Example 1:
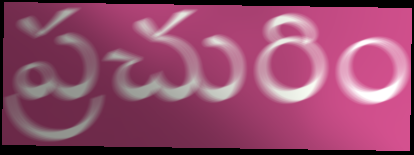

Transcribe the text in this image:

ప్రచురిం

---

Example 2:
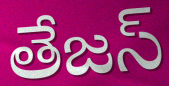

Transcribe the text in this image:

తేజస్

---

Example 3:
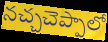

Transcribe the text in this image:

నచ్చచెప్పాలో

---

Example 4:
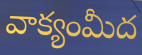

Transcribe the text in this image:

వాక్యంమీద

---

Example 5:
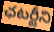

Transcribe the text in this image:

ఛటర్జీని